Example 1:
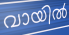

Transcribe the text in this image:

വായിൽ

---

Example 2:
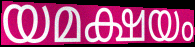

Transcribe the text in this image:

യമക്ഷയം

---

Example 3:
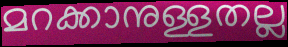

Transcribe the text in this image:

മറക്കാനുള്ളതല്ല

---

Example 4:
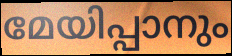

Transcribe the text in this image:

മേയിപ്പാനും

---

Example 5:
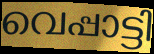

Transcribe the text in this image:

വെപ്പാട്ടി